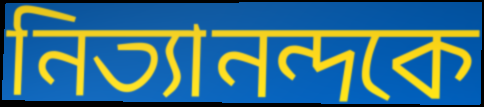
নিত্যানন্দকে